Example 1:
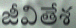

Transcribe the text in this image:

జీవితేశ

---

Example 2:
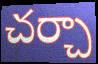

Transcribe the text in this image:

చర్చా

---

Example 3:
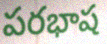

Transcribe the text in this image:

పరభాష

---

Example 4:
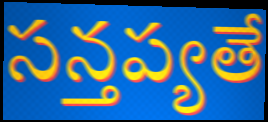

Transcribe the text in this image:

సన్తప్యతే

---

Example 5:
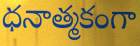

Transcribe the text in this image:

ధనాత్మకంగా